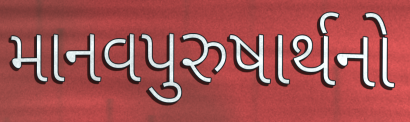
માનવપુરુષાર્થનો